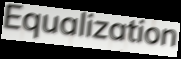
Equalization